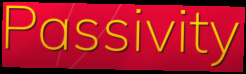
Passivity